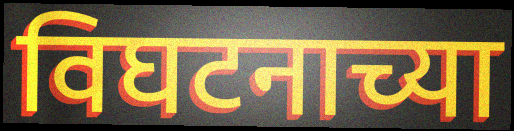
विघटनाच्या